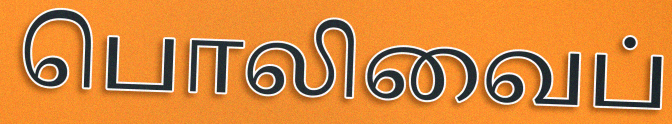
பொலிவைப்